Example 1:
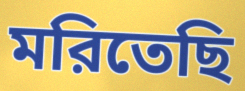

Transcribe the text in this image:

মরিতেছি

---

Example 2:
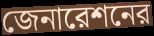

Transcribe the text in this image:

জেনারেশনের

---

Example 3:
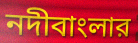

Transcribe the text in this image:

নদীবাংলার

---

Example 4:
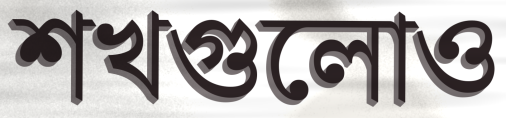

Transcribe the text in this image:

শখগুলোও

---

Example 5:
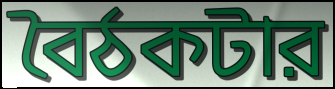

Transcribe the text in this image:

বৈঠকটার